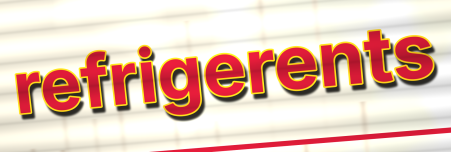
refrigerents